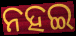
ନହଇ